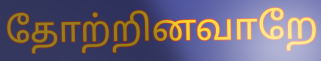
தோற்றினவாறே